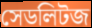
সেডলিটজ